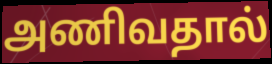
அணிவதால்